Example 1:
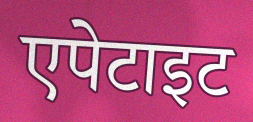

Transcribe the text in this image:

एपेटाइट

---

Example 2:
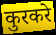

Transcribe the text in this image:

कुरकरे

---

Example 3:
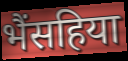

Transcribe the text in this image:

भैंसहिया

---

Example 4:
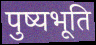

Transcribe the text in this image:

पुष्यभूति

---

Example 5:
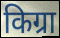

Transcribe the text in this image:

किग्रा